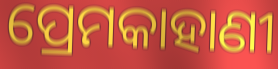
ପ୍ରେମକାହାଣୀ